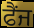
ਫੈਂਜ